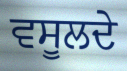
ਵਸੂਲਦੇ